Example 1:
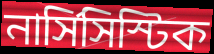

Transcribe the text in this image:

নার্সিসিস্টিক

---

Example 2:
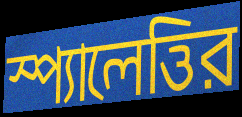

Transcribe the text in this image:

স্প্যালেত্তির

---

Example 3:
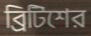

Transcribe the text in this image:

ব্রিটিশের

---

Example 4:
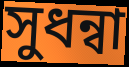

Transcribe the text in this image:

সুধন্বা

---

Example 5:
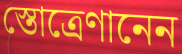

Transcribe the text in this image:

স্তোত্রেণানেন